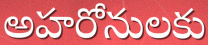
అహరోనులకు